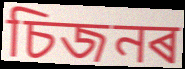
চিজনৰ